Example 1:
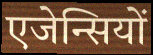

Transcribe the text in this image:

एजेन्सियों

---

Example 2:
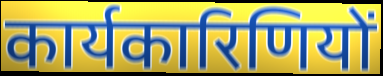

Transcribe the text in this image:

कार्यकारिणियों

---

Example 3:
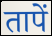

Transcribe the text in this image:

तापें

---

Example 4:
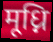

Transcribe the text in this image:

मूध्नि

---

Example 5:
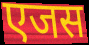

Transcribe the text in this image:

एजस